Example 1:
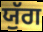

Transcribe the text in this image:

ਯੁੱਗ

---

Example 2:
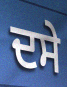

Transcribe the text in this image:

ਦਸੇ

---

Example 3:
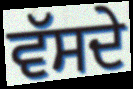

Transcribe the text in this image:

ਵੱਸਦੇ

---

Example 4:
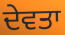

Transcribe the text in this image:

ਦੇਵਤਾ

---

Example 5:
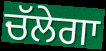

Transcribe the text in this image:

ਚੱਲੇਗਾ